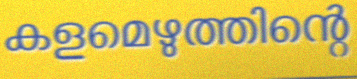
കളമെഴുത്തിന്റെ